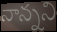
నాన్నని